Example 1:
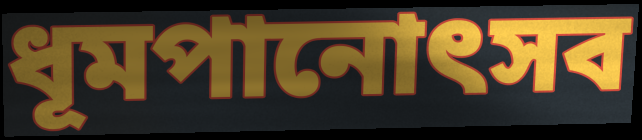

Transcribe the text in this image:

ধূমপানোৎসব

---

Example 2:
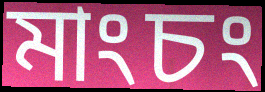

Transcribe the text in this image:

মাংচং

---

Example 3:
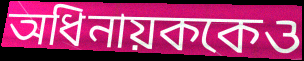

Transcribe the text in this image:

অধিনায়ককেও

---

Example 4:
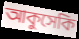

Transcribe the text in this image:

আকুসেকি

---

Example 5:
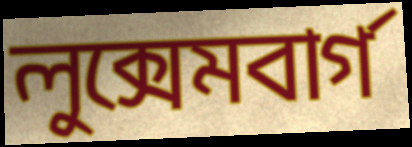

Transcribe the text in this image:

লুক্সেমবার্গ